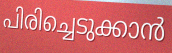
പിരിച്ചെടുക്കാൻ